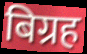
बिग्रह